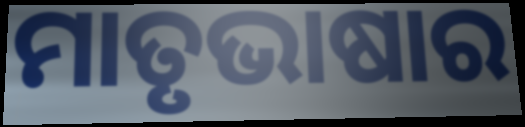
ମାତୃଭାଷାର